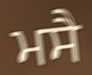
ਮਸੈ